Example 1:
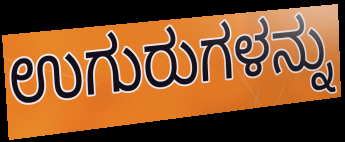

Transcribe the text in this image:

ಉಗುರುಗಳನ್ನು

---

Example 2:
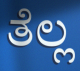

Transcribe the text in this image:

ತೆಲ್ಲ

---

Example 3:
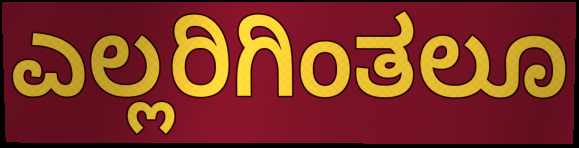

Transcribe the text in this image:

ಎಲ್ಲರಿಗಿಂತಲೂ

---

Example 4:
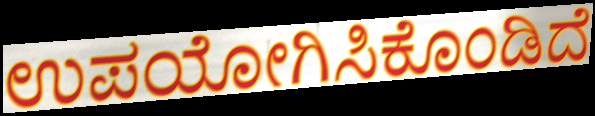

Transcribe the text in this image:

ಉಪಯೋಗಿಸಿಕೊಂಡಿದೆ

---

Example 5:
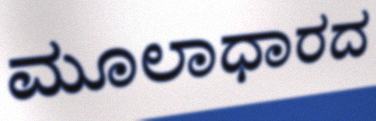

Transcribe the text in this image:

ಮೂಲಾಧಾರದ